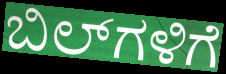
ಬಿಲ್‌ಗಳಿಗೆ